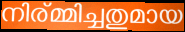
നിര്മ്മിച്ചതുമായ